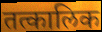
तत्कालिक